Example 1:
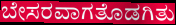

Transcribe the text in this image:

ಬೇಸರವಾಗತೊಡಗಿತು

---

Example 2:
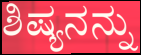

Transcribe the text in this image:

ಶಿಷ್ಯನನ್ನು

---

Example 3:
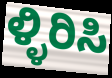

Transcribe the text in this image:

ಳ್ಳಿರಿಸಿ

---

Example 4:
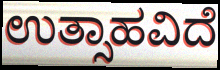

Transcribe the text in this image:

ಉತ್ಸಾಹವಿದೆ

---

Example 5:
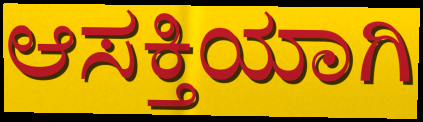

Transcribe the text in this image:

ಆಸಕ್ತಿಯಾಗಿ